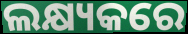
ଲକ୍ଷ୍ୟକରେ